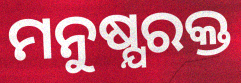
ମନୁଷ୍ଯରକ୍ତ